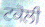
ਟਕੋਲੀ